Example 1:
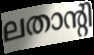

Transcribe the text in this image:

ലതാന്റി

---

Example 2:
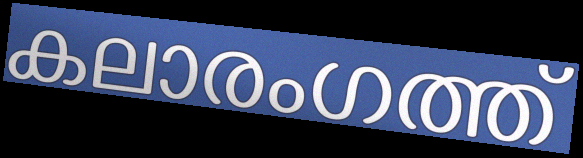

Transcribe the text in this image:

കലാരംഗത്ത്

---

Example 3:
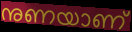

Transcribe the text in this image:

നുണയാണ്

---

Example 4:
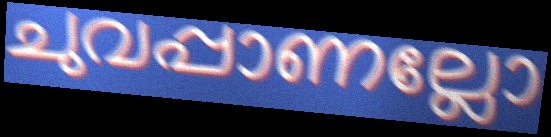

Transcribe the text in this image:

ചുവപ്പാണല്ലോ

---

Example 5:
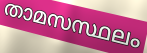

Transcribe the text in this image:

താമസസ്ഥലം